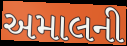
અમાલની